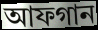
আফগান